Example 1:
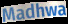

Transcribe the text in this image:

Madhwa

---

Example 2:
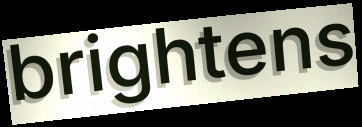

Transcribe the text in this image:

brightens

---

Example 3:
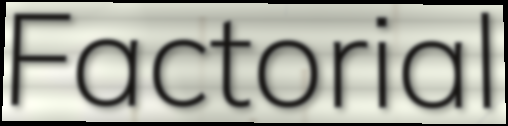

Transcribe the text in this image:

Factorial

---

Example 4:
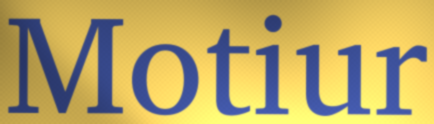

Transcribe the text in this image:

Motiur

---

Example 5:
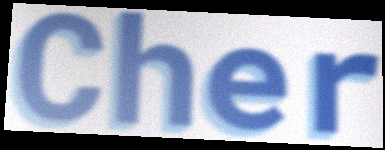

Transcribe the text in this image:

Cher